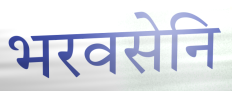
भरवसेनि